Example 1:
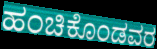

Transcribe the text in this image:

ಹಂಚಿಕೊಂಡವರ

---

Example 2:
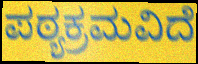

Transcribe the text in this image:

ಪಠ್ಯಕ್ರಮವಿದೆ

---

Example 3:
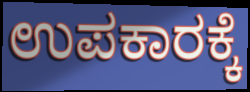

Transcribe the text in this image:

ಉಪಕಾರಕ್ಕೆ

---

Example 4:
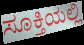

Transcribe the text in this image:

ಸೂಕ್ತಿಯಲ್ಲಿ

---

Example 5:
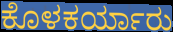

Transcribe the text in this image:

ಕೊಳಕರ್ಯಾರು